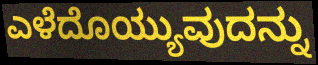
ಎಳೆದೊಯ್ಯುವುದನ್ನು